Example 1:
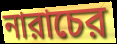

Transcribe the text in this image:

নারাচের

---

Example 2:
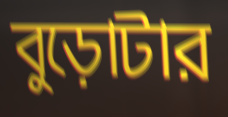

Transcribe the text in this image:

বুড়োটার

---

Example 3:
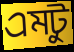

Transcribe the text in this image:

এমটু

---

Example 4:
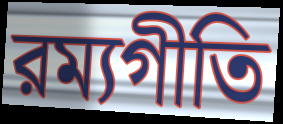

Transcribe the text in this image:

রম্যগীতি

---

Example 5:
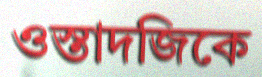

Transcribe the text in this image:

ওস্তাদজিকে